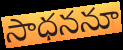
సాధననూ